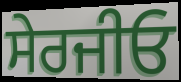
ਸੇਰਜੀਓ